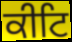
ਕੀਟਿ